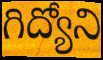
గిద్యోని